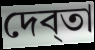
দেব্তা